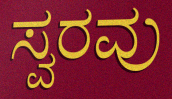
ಸ್ವರವು